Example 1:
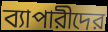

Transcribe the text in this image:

ব্যাপারীদের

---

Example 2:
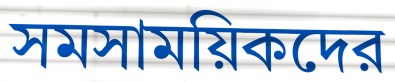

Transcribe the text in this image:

সমসাময়িকদের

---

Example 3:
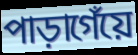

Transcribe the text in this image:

পাড়াগেঁয়ে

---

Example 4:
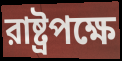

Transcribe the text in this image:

রাষ্ট্রপক্ষে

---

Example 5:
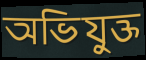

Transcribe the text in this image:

অভিযুক্ত